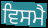
ਵਿਸਮੈ